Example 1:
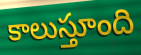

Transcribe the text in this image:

కాలుస్తూంది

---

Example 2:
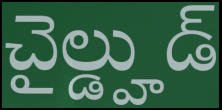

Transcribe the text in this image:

చైల్డ్హుడ్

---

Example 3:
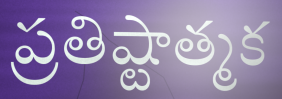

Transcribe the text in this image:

ప్రతిష్టాత్మక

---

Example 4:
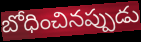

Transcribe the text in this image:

బోధించినప్పుడు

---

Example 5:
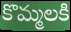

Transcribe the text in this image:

కొమ్మలకి